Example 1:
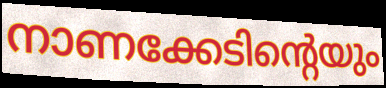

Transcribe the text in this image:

നാണക്കേടിന്റെയും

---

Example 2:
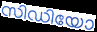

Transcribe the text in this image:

സിഡിയോ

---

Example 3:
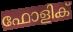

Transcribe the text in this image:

ഫോളിക്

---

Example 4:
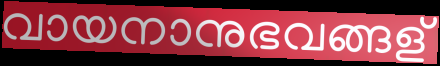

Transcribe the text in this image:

വായനാനുഭവങ്ങള്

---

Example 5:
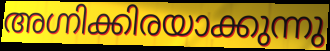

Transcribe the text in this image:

അഗ്നിക്കിരയാക്കുന്നു